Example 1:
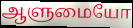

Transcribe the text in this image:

ஆளுமையோ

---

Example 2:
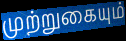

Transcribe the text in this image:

முற்றுகையும்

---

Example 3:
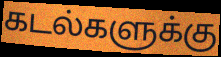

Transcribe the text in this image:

கடல்களுக்கு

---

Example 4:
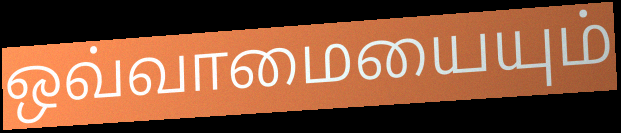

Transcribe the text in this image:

ஒவ்வாமையையும்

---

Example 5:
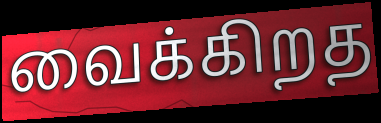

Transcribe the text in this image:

வைக்கிறத